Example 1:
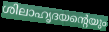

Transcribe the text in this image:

ശിലാഹൃദയന്റെയും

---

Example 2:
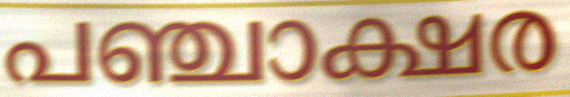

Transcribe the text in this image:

പഞ്ചാക്ഷര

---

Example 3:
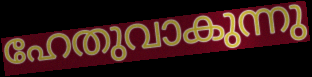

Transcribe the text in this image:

ഹേതുവാകുന്നു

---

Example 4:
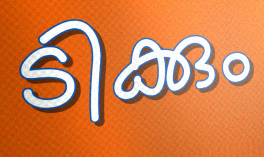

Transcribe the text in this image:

ടിക്കും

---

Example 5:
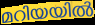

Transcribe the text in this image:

മറിയയിൽ